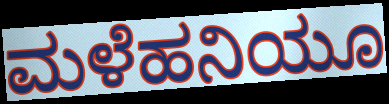
ಮಳೆಹನಿಯೂ